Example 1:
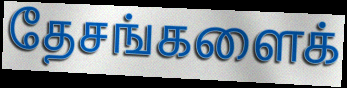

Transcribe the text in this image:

தேசங்களைக்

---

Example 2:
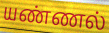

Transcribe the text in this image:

யண்ணல்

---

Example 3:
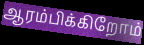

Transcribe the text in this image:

ஆரம்பிக்கிறோம்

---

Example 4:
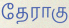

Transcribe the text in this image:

தேராகு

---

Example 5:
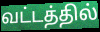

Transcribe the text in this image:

வட்டத்தில்